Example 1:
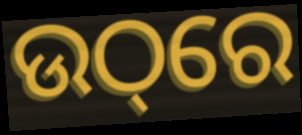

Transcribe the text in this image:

ଉଠ୍‌ରେ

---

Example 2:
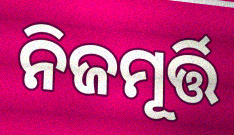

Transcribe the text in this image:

ନିଜମୂର୍ତ୍ତି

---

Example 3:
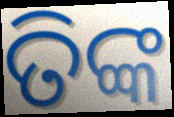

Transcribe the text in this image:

ତିଙ୍କ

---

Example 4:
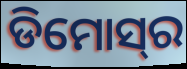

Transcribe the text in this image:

ଡିମୋସ୍‌ର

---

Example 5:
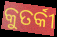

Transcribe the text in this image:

କୁତର୍କୀ